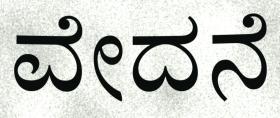
ವೇದನೆ